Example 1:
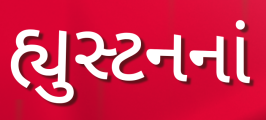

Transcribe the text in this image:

હ્યુસ્ટનનાં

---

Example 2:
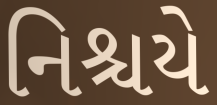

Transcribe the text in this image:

નિશ્ચયે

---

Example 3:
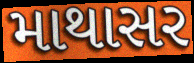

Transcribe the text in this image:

માથાસર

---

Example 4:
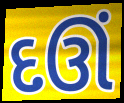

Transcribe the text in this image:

દઊં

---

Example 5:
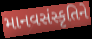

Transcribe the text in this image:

માનવસંસ્કૃતિને